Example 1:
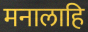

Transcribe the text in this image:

मनालाहि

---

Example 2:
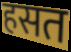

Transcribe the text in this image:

हसत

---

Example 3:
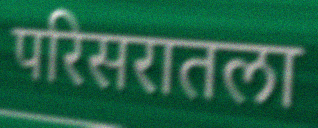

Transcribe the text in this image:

परिसरातला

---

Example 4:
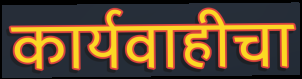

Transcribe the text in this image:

कार्यवाहीचा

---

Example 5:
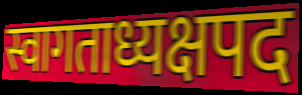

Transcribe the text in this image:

स्वागताध्यक्षपद